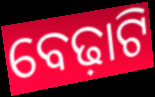
ବେଢ଼ାଟି